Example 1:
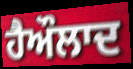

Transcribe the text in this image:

ਹੈਔਲਾਦ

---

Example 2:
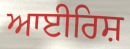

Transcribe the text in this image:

ਆਈਰਿਸ਼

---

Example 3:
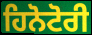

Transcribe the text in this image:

ਹਿਨੋਟੋਰੀ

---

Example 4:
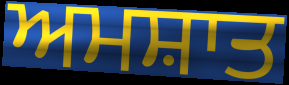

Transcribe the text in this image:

ਅਮਸ਼ਾਤ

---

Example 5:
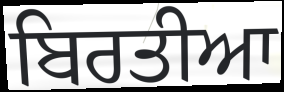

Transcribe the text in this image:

ਬਿਰਤੀਆ